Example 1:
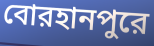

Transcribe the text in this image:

বোরহানপুরে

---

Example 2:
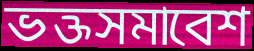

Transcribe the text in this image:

ভক্তসমাবেশ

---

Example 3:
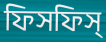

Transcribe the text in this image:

ফিসফিস্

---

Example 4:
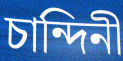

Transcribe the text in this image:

চান্দিনী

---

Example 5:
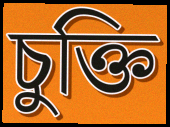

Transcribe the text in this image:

চুক্তি